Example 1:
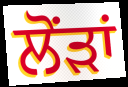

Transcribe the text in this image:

ਲੋਂੜਾਂ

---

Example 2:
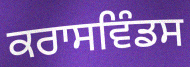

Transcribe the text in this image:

ਕਰਾਸਵਿੰਡਸ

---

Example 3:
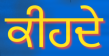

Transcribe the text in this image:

ਕੀਹਦੇ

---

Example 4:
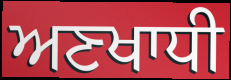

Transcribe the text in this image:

ਅਣਖਾਧੀ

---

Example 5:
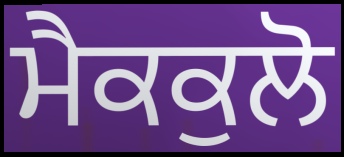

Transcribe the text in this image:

ਮੈਕਕੁਲੋ